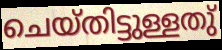
ചെയ്തിട്ടുള്ളതു്